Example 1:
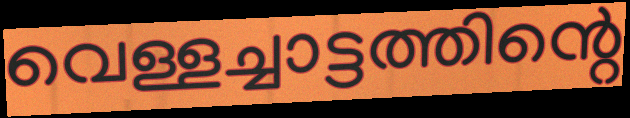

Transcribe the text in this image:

വെള്ളച്ചാട്ടത്തിന്റെ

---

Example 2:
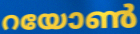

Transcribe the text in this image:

റയോൺ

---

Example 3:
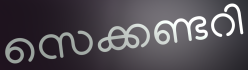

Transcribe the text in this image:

സെക്കണ്ടറി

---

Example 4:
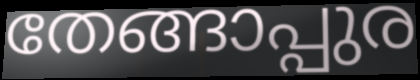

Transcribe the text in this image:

തേങ്ങാപ്പുര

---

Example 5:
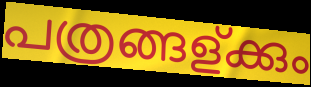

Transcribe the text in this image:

പത്രങ്ങള്ക്കും